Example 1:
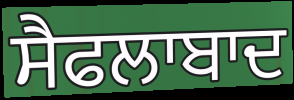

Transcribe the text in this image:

ਸੈਫਲਾਬਾਦ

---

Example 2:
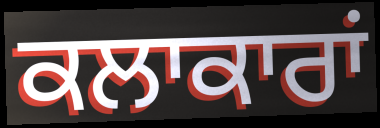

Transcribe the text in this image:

ਕਲਾਕਾਰਾਂ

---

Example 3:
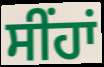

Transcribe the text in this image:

ਸੀਂਹਾਂ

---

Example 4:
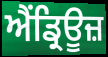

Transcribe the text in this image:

ਐਂਡ੍ਰਿਊਜ਼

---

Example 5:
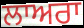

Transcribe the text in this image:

ਲਾਅਰਾ